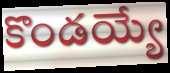
కొండయ్యే